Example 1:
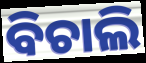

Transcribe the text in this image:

ବିଚାଲି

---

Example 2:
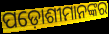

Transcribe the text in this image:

ପଡ଼ୋଶୀମାନଙ୍କର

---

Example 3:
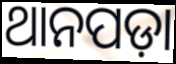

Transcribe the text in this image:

ଥାନପଡ଼ା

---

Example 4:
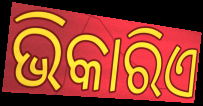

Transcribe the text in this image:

ଭିକାରିଏ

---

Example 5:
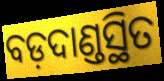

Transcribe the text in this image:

ବଡ଼ଦାଣ୍ଡସ୍ଥିତ